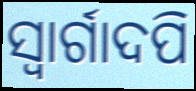
ସ୍ୱାର୍ଗାଦପି